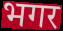
भगर